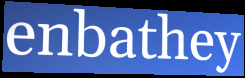
enbathey